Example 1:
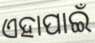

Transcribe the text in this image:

ଏହାପାଇଁ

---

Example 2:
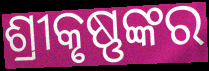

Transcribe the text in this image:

ଶ୍ରୀକୃଷ୍ଣଙ୍କର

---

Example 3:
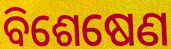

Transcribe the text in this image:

ବିଶେଷେଣ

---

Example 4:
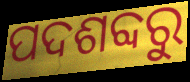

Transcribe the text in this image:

ପଦଶବ୍ଦରୁ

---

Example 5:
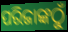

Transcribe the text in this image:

ପରିଜାଙ୍କଠୁଁ